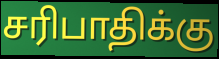
சரிபாதிக்கு